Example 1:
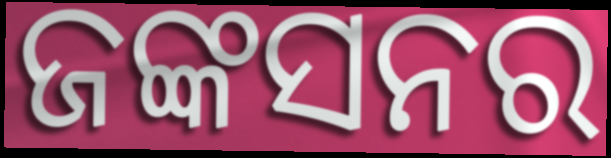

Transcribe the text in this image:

ଜଙ୍କସନର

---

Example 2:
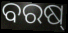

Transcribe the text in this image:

ବରଷ୍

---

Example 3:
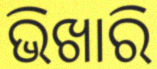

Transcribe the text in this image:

ଭିଖାରି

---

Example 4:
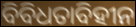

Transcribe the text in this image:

ବିବିଧତାବିହୀନ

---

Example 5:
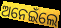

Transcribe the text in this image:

ଅନେଇଁଲେ